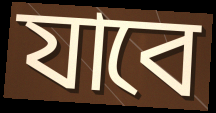
যাবে